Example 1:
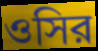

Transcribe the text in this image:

ওসির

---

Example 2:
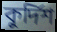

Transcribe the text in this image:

কুর্দিশ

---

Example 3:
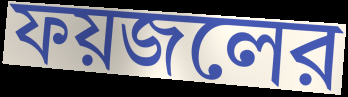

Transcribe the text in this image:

ফয়জলের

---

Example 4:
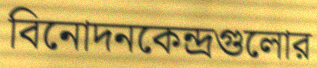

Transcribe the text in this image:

বিনোদনকেন্দ্রগুলোর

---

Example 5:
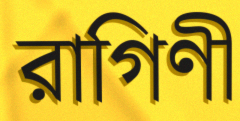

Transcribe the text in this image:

রাগিণী